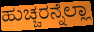
ಹುಚ್ಚರನ್ನೆಲ್ಲಾ